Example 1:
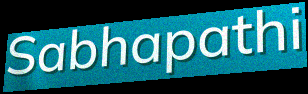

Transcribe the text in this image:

Sabhapathi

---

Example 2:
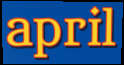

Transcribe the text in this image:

april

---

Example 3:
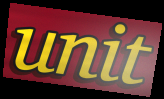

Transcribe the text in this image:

unit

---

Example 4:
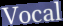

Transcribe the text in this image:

Vocal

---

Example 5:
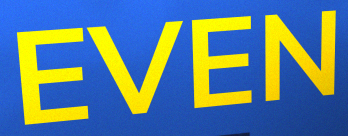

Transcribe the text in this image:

EVEN